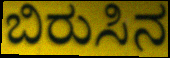
ಬಿರುಸಿನ